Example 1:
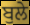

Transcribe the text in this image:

ਬੁਲੇ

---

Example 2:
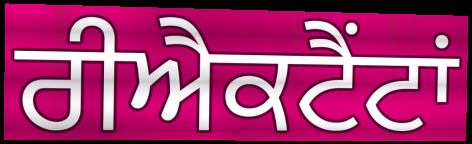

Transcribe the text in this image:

ਰੀਐਕਟੈਂਟਾਂ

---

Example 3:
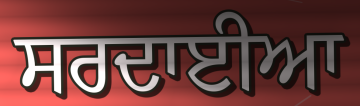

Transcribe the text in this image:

ਸਰਦਾਈਆ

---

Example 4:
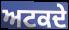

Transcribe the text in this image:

ਅਟਕਦੇ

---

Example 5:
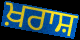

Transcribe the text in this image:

ਖ਼ਰਾਸ਼